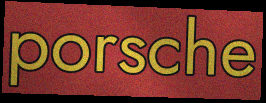
porsche